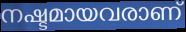
നഷ്ടമായവരാണ്